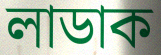
লাডাক